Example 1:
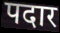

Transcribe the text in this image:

पदार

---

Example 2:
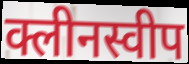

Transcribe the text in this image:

क्लीनस्वीप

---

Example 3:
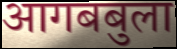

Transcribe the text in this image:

आगबबुला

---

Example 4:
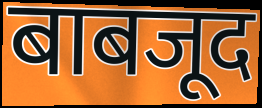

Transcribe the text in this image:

बाबजूद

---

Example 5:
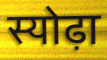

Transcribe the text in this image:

स्योढ़ा